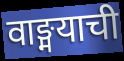
वाङ्मयाची